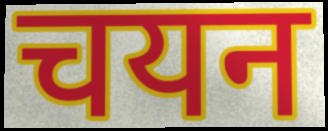
चयन